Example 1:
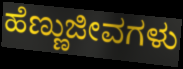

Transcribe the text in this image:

ಹೆಣ್ಣುಜೀವಗಳು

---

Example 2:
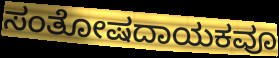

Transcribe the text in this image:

ಸಂತೋಷದಾಯಕವೂ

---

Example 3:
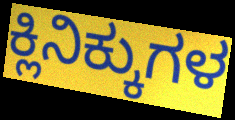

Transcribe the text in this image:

ಕ್ಲಿನಿಕ್ಕುಗಳ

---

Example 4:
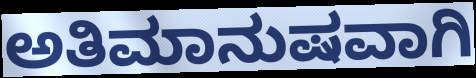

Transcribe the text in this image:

ಅತಿಮಾನುಷವಾಗಿ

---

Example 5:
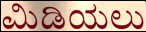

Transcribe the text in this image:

ಮಿಡಿಯಲು